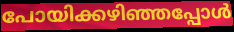
പോയിക്കഴിഞ്ഞപ്പോൾ